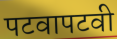
पटवापटवी